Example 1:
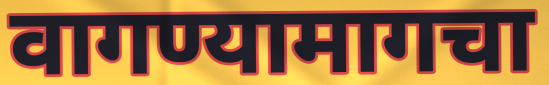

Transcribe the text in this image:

वागण्यामागचा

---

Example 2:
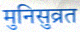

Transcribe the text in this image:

मुनिसुव्रत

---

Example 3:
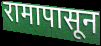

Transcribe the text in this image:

रामापासून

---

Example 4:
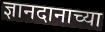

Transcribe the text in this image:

ज्ञानदानाच्या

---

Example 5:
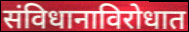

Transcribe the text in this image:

संविधानाविरोधात